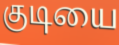
குடியை